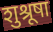
शुश्रूषा